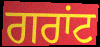
ਗਰਾਂਟ